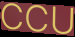
CCU